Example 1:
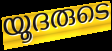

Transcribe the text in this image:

യൂദരുടെ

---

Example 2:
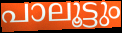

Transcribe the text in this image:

പാലൂട്ടും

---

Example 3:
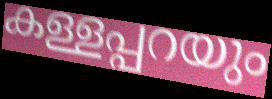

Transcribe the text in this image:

കള്ളപ്പറയും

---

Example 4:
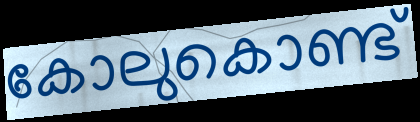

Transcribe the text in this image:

കോലുകൊണ്ട്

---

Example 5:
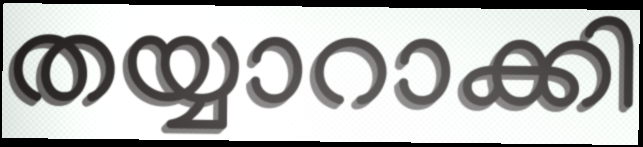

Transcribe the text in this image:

തയ്യാറാക്കി